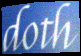
doth